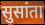
सुसांता